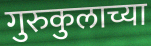
गुरुकुलाच्या